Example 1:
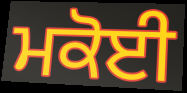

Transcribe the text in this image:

ਮਕੋਈ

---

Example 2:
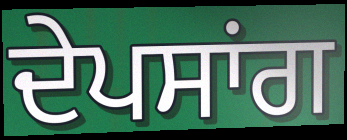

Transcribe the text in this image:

ਦੇਪਸਾਂਗ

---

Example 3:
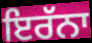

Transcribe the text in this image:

ਇਰੱਨਾ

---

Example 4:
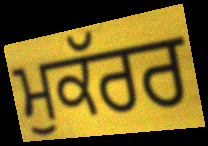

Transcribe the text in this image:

ਮੁਕੱਰਰ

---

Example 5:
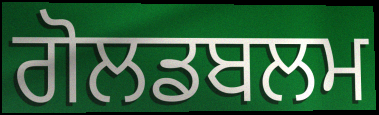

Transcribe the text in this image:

ਗੋਲਡਬਲਮ